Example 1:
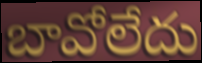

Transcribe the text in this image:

బావోలేదు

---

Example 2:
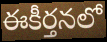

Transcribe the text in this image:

ఈకీర్తనలో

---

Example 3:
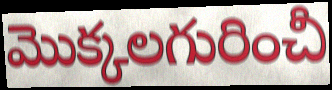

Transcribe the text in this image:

మొక్కలగురించీ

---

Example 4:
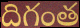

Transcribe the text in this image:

దిగంత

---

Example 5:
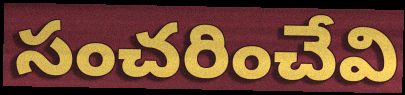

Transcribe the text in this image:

సంచరించేవి